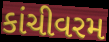
કાંચીવરમ